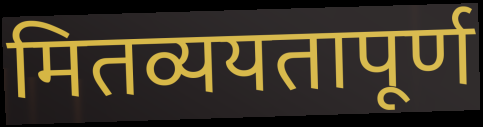
मितव्ययतापूर्ण